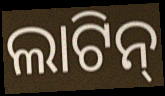
ଲାଟିନ୍